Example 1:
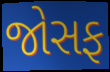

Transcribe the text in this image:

જોસફ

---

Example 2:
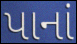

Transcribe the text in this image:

પાનાં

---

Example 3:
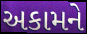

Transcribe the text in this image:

અકામને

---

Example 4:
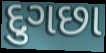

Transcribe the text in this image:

દુગછા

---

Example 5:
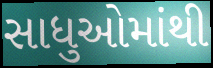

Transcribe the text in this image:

સાધુઓમાંથી